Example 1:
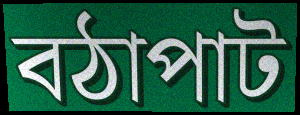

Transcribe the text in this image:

বঠাপাট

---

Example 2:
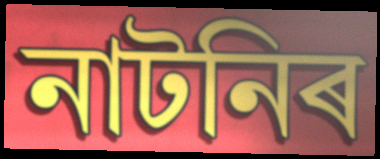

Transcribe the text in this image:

নাটনিৰ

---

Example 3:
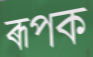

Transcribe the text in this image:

ৰূপক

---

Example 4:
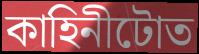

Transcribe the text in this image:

কাহিনীটোত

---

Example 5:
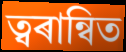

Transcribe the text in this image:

ত্বৰান্বিত